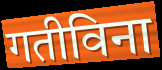
गतीविना